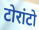
टोरांटो